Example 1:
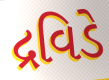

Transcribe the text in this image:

દ્રવિડે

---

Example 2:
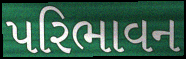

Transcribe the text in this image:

પરિભાવન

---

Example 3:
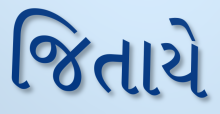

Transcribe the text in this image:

જિતાયે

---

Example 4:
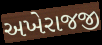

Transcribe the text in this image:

અખેરાજજી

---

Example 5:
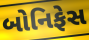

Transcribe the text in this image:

બોનિફેસ